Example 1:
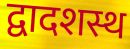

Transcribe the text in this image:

द्वादशस्थ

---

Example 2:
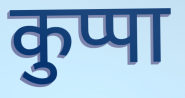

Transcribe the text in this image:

कुप्पा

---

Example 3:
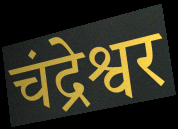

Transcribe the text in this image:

चंद्रेश्वर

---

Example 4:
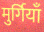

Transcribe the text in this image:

मुर्गियाँ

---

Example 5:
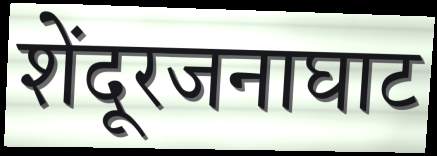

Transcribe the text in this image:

शेंदूरजनाघाट